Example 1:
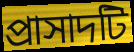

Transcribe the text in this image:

প্রাসাদটি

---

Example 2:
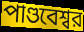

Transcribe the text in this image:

পাণ্ডবেশ্বর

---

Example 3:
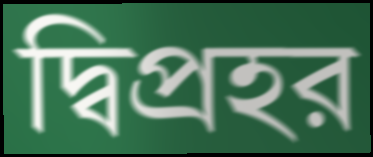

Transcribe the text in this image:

দ্বিপ্রহর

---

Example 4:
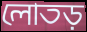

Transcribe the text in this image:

লোতড়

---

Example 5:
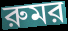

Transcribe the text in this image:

রুমর